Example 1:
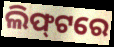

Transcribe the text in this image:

ଲିଫ୍‍ଟରେ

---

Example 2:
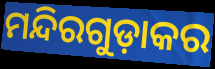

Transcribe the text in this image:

ମନ୍ଦିରଗୁଡ଼ାକର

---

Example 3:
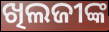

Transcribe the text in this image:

ଖିଲଜୀଙ୍କ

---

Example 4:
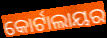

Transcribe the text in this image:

କୋର୍ଟାଲାୟର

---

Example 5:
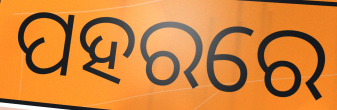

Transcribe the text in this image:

ପହରରେ